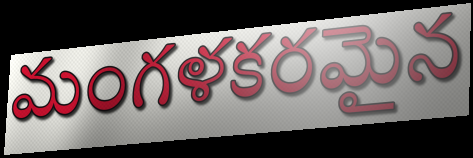
మంగళకరమైన